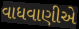
વાધવાણીએ